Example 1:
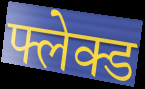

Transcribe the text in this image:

फ्लेक्ड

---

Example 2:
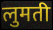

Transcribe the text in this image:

लुमती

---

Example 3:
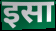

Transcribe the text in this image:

इसा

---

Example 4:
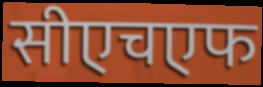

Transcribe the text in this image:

सीएचएफ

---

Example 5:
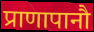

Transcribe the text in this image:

प्राणापानौ